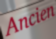
Ancien